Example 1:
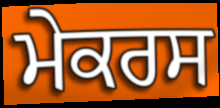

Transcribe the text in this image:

ਮੇਕਰਸ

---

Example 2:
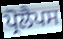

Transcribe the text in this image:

ਪ੍ਰੋਲੈਪਸ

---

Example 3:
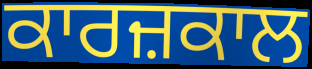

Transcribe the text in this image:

ਕਾਰਜ਼ਕਾਲ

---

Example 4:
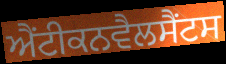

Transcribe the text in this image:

ਐਂਟੀਕਨਵੈਲਸੈਂਟਸ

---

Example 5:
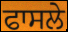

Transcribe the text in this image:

ਫਾਸਲੇ